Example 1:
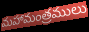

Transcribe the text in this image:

మహామంత్రములు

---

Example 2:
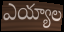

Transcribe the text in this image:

ఎయ్యాల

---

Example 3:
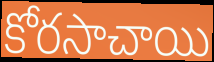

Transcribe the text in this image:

కోరసాచాయి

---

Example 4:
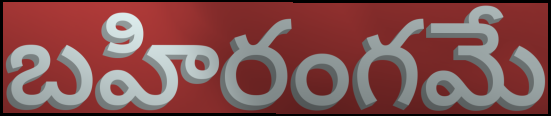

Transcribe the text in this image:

బహిరంగమే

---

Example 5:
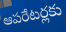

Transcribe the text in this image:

ఆపరేటర్లకు